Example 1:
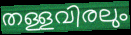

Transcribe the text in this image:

തള്ളവിരലും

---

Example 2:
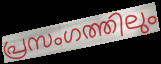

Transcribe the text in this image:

പ്രസംഗത്തിലും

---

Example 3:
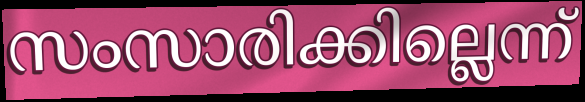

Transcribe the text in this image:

സംസാരിക്കില്ലെന്ന്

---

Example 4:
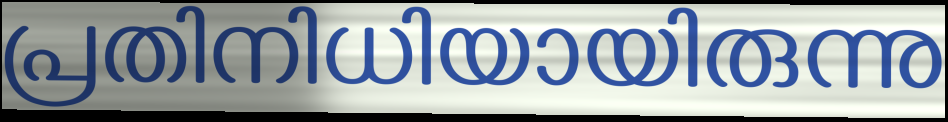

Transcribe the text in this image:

പ്രതിനിധിയായിരുന്നു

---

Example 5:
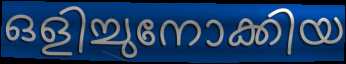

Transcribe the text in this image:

ഒളിച്ചുനോക്കിയ